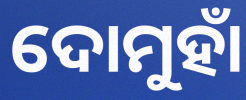
ଦୋମୁହାଁ